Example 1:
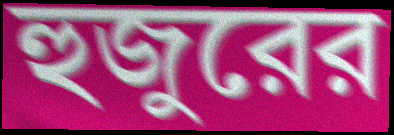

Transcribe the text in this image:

হুজুরের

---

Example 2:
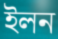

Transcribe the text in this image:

ইলন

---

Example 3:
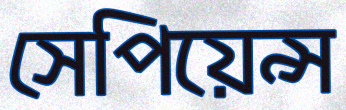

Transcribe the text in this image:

সেপিয়েন্স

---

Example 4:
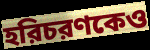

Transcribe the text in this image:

হরিচরণকেও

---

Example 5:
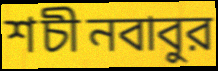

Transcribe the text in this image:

শচীনবাবুর